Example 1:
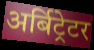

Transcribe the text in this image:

अर्बिट्रेटर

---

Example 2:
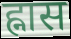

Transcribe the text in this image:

ह्नास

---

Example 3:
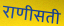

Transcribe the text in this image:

राणीसती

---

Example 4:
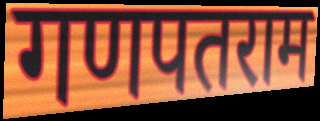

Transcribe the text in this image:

गणपतराम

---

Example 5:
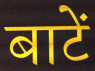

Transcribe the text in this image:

बाटें